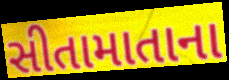
સીતામાતાના